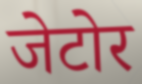
जेटोर